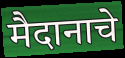
मैदानाचे